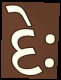
દેઃ